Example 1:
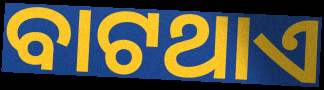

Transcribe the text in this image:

ବାଟଥାଏ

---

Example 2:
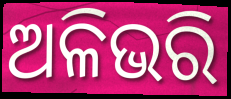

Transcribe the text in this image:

ଅଳିଭରି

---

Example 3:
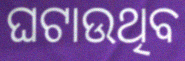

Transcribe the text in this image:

ଘଟାଉଥିବ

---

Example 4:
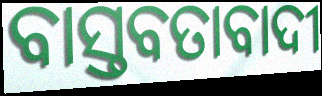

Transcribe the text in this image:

ବାସ୍ତବତାବାଦୀ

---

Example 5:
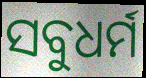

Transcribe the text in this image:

ସବୁଧର୍ମ